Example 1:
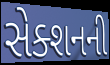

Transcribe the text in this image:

સેક્શનની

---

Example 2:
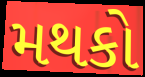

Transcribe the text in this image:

મથકો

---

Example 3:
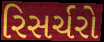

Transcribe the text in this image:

રિસર્ચરો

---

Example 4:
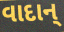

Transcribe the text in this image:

વાદાન્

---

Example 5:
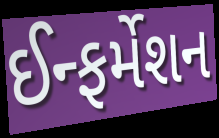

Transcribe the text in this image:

ઈન્ફર્મેશન